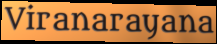
Viranarayana